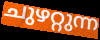
ചുഴറ്റുന്ന